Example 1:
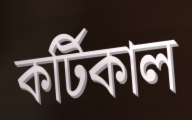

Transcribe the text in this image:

কর্টিকাল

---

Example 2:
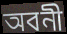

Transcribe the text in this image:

অবনী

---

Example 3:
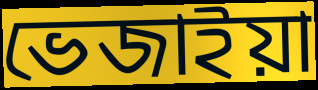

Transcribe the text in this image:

ভেজাইয়া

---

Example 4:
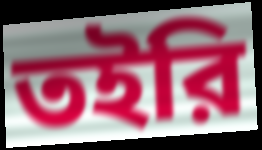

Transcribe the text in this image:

তইরি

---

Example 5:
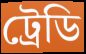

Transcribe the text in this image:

ট্রেডি